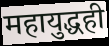
महायुद्धही